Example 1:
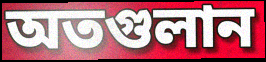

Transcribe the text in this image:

অতগুলান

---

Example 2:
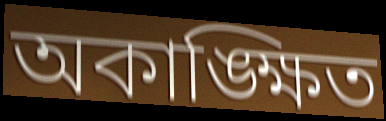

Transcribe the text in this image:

অকাঙ্ক্ষিত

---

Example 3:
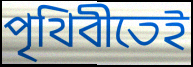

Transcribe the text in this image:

পৃথিবীতেই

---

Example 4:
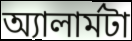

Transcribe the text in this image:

অ্যালার্মটা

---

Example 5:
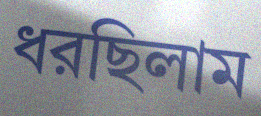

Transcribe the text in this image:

ধরছিলাম